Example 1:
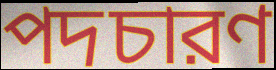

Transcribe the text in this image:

পদচারণ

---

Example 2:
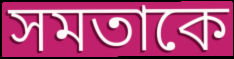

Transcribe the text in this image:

সমতাকে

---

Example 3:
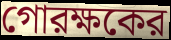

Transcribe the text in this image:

গোরক্ষকের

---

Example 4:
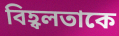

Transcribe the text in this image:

বিহ্বলতাকে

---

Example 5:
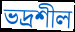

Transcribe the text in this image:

ভদ্রশীল